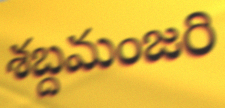
శబ్దమంజరి